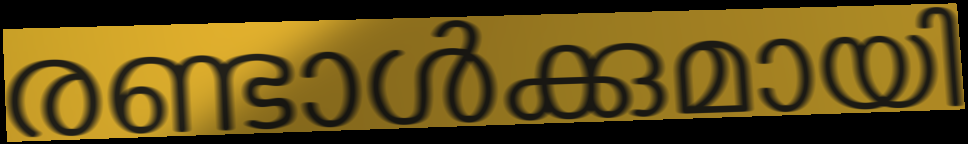
രണ്ടാൾക്കുമായി